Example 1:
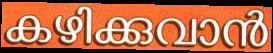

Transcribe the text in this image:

കഴിക്കുവാൻ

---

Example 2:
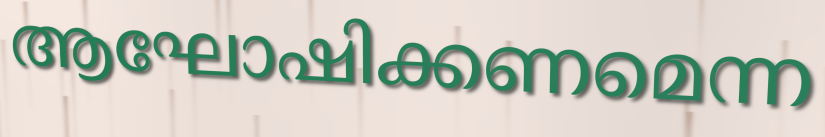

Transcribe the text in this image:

ആഘോഷിക്കണമെന്ന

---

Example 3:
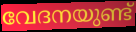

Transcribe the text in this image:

വേദനയുണ്ട്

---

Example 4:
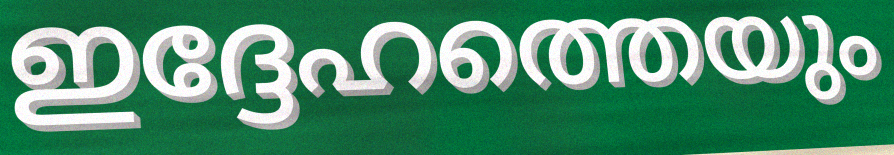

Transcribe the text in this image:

ഇദ്ദേഹത്തെയും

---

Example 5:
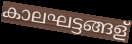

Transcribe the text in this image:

കാലഘട്ടങ്ങള്